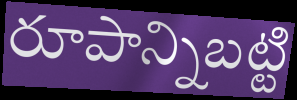
రూపాన్నిబట్టి